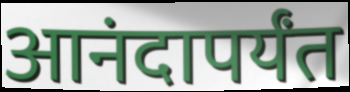
आनंदापर्यंत